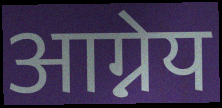
आग्नेय